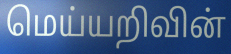
மெய்யறிவின்